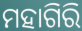
ମହାଗିରି